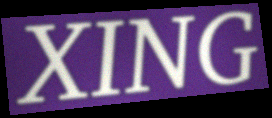
XING